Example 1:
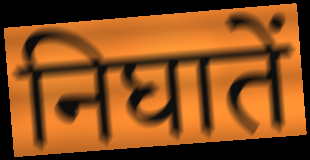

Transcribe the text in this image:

निघातें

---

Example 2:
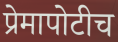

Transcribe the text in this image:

प्रेमापोटीच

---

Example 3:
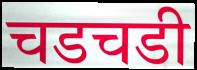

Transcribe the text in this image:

चडचडी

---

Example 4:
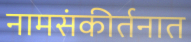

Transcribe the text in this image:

नामसंकीर्तनात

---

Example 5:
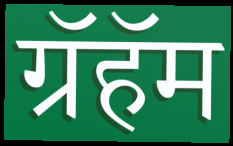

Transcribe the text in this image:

ग्रॅहॅम